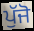
ਪੁੱਜੋ